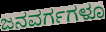
ಜನವರ್ಗಗಳೂ